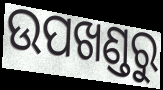
ଉପଖଣ୍ଡରୁ